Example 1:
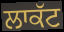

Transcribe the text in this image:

ਲਾਕੱਟ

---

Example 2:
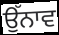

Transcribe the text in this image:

ਉੱਨਾਵ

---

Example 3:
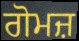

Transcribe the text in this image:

ਗੋਮਜ਼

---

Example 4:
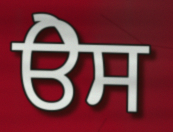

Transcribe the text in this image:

ੳੇਸ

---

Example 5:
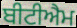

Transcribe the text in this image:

ਬੀਟੀਐਮ